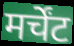
मर्चेंट